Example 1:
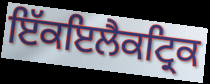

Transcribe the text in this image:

ਇੱਕਇਲੈਕਟ੍ਰਿਕ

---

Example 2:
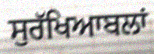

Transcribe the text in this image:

ਸੁਰੱਖਿਆਬਲਾਂ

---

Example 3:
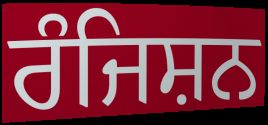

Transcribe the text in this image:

ਰੰਜਿਸ਼ਨ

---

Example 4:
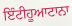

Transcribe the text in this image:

ਇੰਟੀਹੂਆਟਾਨਾ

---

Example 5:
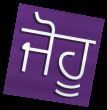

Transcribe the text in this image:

ਜੋਹੂ